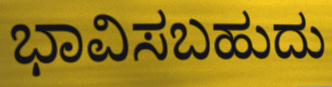
ಭಾವಿಸಬಹುದು